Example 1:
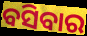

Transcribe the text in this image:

ବସିବାର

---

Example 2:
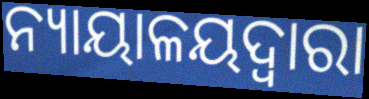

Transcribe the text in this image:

ନ୍ୟାୟାଳୟଦ୍ୱାରା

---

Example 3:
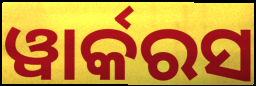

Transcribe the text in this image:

ୱାର୍କରସ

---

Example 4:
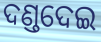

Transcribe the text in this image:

ଦଣ୍ଡଦେଇ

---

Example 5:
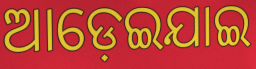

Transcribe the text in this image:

ଆଡ଼େଇଯାଇ